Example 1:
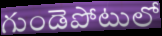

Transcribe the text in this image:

గుండెపోటులో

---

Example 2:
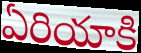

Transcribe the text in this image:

ఏరియాకి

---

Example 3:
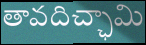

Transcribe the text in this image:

తావదిచ్ఛామి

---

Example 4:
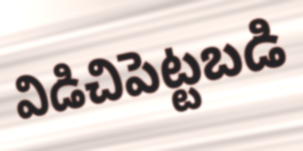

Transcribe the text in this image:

విడిచిపెట్టబడి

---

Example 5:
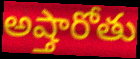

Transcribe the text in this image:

అష్తారోతు